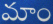
మాం